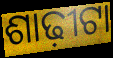
ଶାଢ଼ୀଟା